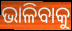
ଭାଳିବାକୁ